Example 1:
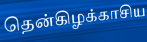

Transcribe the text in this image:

தென்கிழக்காசிய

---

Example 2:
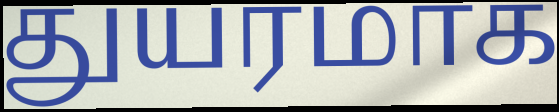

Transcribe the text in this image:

துயரமாக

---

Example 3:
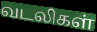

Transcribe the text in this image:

வடலிகள்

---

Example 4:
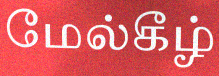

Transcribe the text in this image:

மேல்கீழ்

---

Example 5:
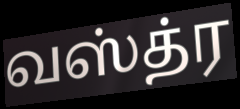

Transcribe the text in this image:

வஸ்த்ர